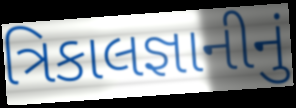
ત્રિકાલજ્ઞાનીનું